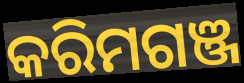
କରିମଗଞ୍ଜ